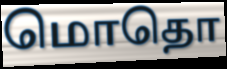
மொதொ